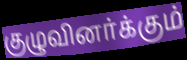
குழுவினர்க்கும்